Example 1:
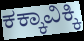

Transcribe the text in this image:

ಕಕ್ಕಾವಿಕ್ಕಿ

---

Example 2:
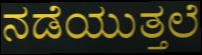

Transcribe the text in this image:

ನಡೆಯುತ್ತಲೆ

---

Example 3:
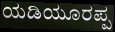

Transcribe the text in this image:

ಯಡಿಯೂರಪ್ಪ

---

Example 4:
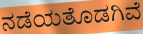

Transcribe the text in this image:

ನಡೆಯತೊಡಗಿವೆ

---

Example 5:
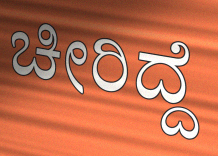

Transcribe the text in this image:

ಚೀರಿದ್ದೆ